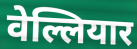
वेल्लियार